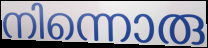
നിന്നൊരു